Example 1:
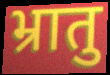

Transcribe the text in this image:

भ्रातु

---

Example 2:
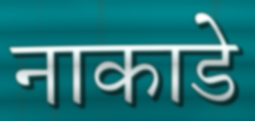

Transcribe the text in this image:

नाकाडे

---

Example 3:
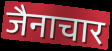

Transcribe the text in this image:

जैनाचार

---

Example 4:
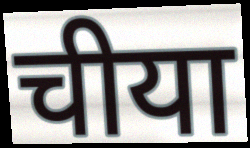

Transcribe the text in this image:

चीया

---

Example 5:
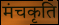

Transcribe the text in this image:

मंचकृति